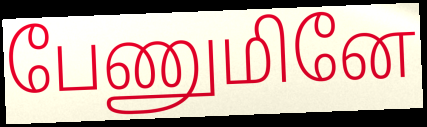
பேணுமினே